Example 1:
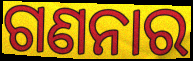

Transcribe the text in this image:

ଗଣନାର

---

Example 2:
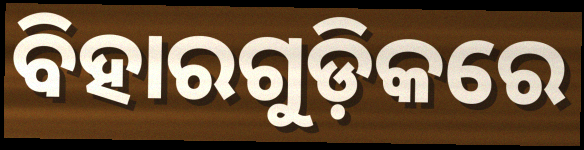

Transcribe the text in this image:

ବିହାରଗୁଡ଼ିକରେ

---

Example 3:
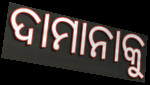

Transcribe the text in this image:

ଦାମାନାକୁ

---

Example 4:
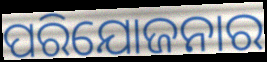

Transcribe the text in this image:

ପରିଯୋଜନାର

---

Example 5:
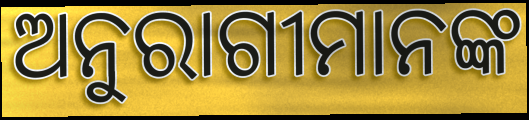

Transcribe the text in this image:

ଅନୁରାଗୀମାନଙ୍କ